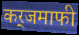
कर्जमाफी